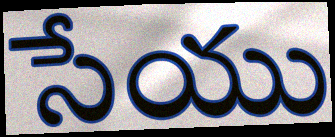
సేయు